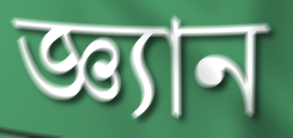
জ্ঞ্যান